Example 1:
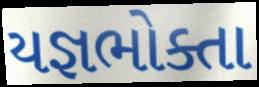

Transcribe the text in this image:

યજ્ઞભોક્તા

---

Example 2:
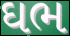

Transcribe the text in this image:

ઘભ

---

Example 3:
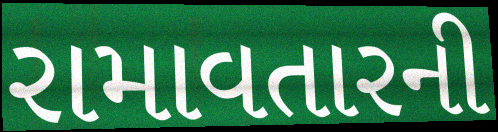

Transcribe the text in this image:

રામાવતારની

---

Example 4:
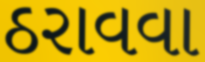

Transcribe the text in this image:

ઠરાવવા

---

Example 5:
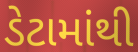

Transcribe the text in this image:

ડેટામાંથી